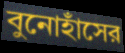
বুনোহাঁসের